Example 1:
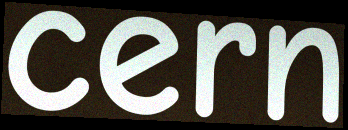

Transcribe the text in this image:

cern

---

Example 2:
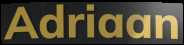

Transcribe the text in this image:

Adriaan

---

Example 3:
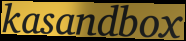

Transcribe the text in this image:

kasandbox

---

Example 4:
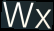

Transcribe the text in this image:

Wx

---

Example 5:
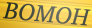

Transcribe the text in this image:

BOMOH